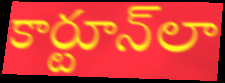
కార్టూన్‌లా